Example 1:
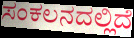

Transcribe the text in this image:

ಸಂಕಲನದಲ್ಲಿದೆ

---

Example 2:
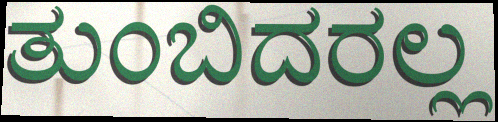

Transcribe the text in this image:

ತುಂಬಿದರಲ್ಲ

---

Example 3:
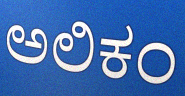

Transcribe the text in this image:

ಅಲಿಕಂ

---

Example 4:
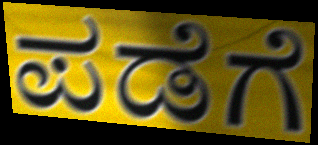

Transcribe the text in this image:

ಪಡೆಗೆ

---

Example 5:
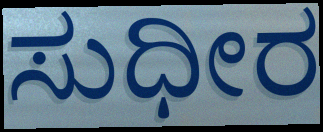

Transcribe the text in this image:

ಸುಧೀರ